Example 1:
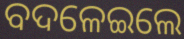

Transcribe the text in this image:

ବଦଳେଇଲେ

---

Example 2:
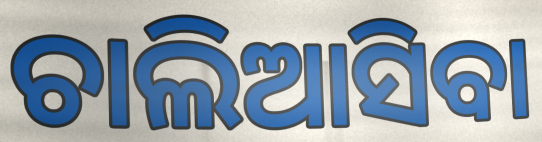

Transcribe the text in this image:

ଚାଲିଆସିବା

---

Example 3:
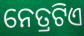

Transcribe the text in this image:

ନେତ୍ରଟିଏ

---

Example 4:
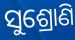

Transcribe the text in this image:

ସୁଶ୍ରୋଣି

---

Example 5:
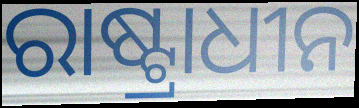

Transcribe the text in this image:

ରାଷ୍ଟ୍ରାଧୀନ